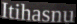
Itihasnu